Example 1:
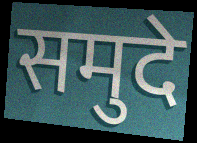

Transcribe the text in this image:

समुदे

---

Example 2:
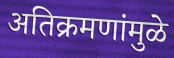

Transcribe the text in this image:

अतिक्रमणांमुळे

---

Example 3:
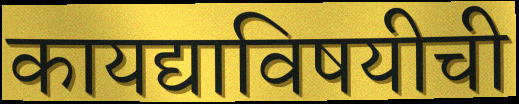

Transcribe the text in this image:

कायद्याविषयीची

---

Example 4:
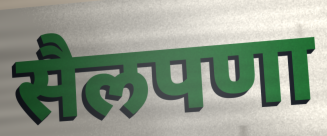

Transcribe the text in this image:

सैलपणा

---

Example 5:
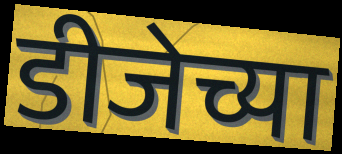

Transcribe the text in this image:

डीजेच्या